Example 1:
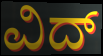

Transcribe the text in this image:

ವಿದ್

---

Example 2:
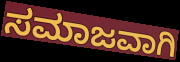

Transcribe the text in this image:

ಸಮಾಜವಾಗಿ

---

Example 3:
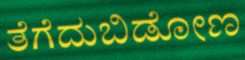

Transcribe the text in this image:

ತೆಗೆದುಬಿಡೋಣ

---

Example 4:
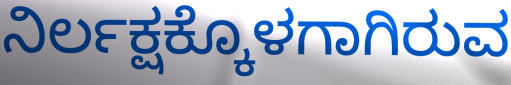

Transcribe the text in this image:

ನಿರ್ಲಕ್ಷಕ್ಕೊಳಗಾಗಿರುವ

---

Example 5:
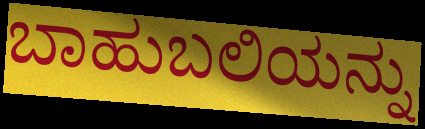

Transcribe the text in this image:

ಬಾಹುಬಲಿಯನ್ನು